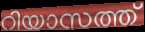
റിയാസത്ത്